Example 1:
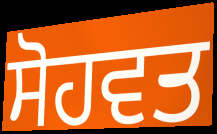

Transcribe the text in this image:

ਸੋਹਵਤ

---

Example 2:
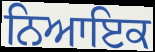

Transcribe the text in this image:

ਨਿਆਇਕ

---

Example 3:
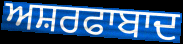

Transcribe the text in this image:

ਅਸ਼ਰਫਾਬਾਦ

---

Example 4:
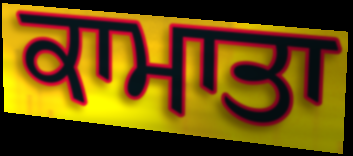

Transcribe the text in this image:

ਕਾਮਾਤਾ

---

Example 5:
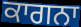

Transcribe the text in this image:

ਕਾਗਨਾ